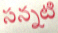
సన్నటి